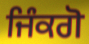
ਜਿੰਕਗੋ